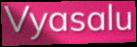
Vyasalu